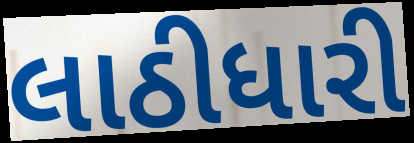
લાઠીધારી